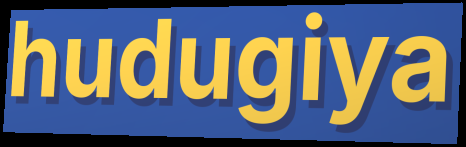
hudugiya